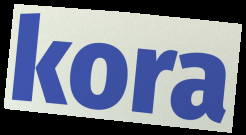
kora